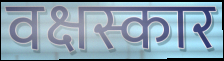
वक्षस्कार